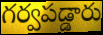
గర్వపడ్డారు